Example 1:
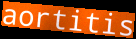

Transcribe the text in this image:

aortitis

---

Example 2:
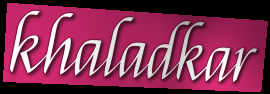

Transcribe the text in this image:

khaladkar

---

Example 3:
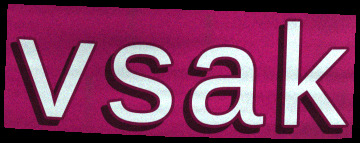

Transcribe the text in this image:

vsak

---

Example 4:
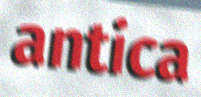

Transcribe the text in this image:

antica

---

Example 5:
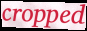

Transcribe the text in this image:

cropped